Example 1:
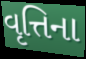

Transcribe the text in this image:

વૃત્તિના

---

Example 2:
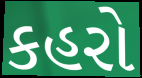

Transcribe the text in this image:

કહરો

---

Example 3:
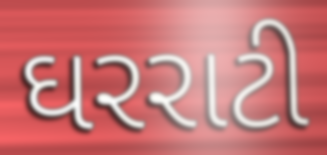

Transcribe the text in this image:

ઘરરાટી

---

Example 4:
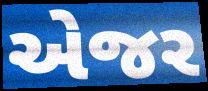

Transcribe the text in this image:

એજર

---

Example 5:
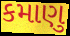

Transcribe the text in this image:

કમાણુ